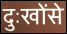
दुःखोंसे